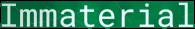
Immaterial